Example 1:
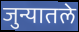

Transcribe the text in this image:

जुन्यातले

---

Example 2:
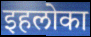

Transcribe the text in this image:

इहलोका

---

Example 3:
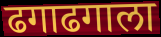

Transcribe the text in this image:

ढगाढगाला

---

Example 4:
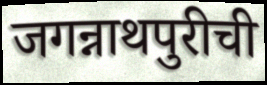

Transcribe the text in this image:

जगन्नाथपुरीची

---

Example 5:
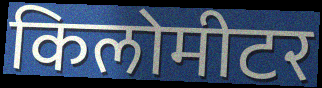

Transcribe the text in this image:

किलोमीटर